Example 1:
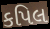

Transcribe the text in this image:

કપિલ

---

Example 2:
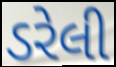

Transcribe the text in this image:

ડરેલી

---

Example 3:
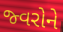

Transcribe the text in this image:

જ્વરોને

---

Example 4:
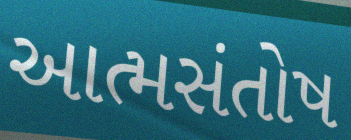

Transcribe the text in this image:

આત્મસંતોષ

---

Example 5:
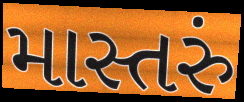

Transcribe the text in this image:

માસ્તરું